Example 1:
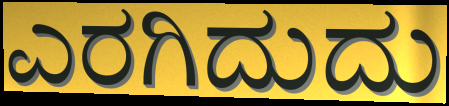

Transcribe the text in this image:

ಎರಗಿದುದು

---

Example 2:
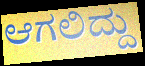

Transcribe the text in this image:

ಆಗಲಿದ್ದು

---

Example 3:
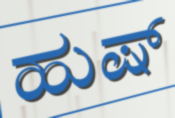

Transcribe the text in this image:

ಹುಷ್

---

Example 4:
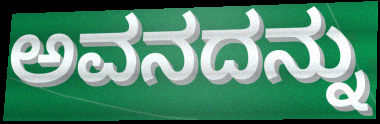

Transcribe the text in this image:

ಅವನದನ್ನು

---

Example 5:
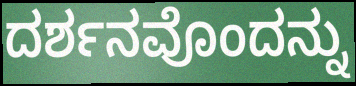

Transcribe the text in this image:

ದರ್ಶನವೊಂದನ್ನು